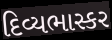
દિવ્યભાસ્કર